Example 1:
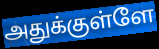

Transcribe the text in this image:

அதுக்குள்ளே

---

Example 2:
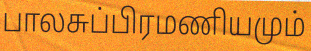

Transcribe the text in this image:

பாலசுப்பிரமணியமும்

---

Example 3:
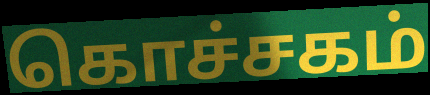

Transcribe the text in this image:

கொச்சகம்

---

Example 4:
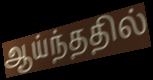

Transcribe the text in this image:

ஆய்ந்ததில்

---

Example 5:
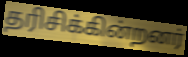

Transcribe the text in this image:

தரிசிக்கின்றனர்